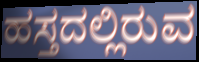
ಹಸ್ತದಲ್ಲಿರುವ